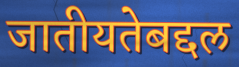
जातीयतेबद्दल